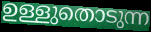
ഉള്ളുതൊടുന്ന